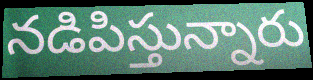
నడిపిస్తున్నారు